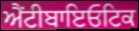
ਐਂਟੀਬਾਇਓਟਿਕ